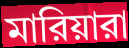
মারিয়ারা